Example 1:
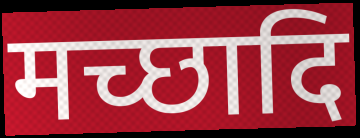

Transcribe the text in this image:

मच्छादि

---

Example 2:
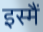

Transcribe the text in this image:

इस्मैं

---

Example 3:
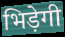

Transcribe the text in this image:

भिड़ेगी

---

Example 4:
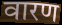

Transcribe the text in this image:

वारण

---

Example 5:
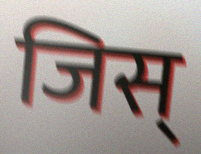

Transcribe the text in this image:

जिस्